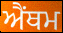
ਐਂਥਮ